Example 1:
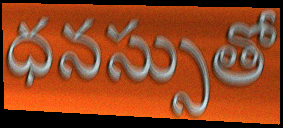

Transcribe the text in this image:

ధనస్సుతో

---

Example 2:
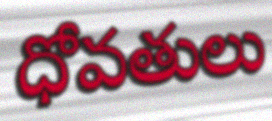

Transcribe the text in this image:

ధోవతులు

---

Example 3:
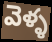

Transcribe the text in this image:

వెళ్ళ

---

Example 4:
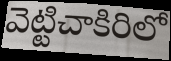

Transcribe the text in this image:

వెట్టిచాకిరిలో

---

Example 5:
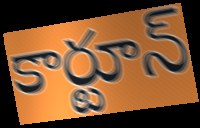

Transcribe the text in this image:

కార్టూన్